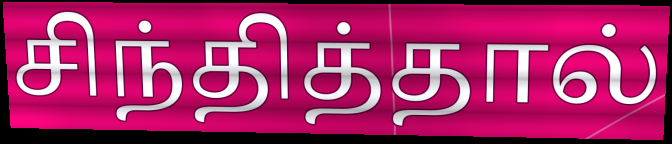
சிந்தித்தால்